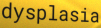
dysplasia